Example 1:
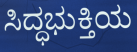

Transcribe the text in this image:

ಸಿದ್ಧಭುಕ್ತಿಯ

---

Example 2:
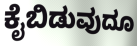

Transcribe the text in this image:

ಕೈಬಿಡುವುದೂ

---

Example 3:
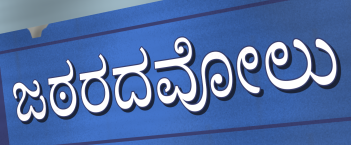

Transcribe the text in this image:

ಜಠರದವೋಲು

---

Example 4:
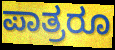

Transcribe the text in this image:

ಪಾತ್ರರೂ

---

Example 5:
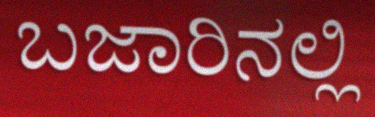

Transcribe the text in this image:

ಬಜಾರಿನಲ್ಲಿ